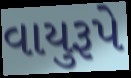
વાયુરૂપે